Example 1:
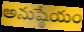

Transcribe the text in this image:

అనుష్ఠేయం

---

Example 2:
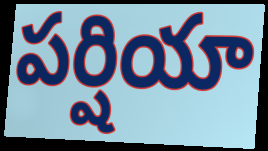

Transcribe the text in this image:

పర్షియా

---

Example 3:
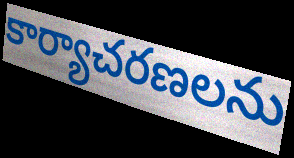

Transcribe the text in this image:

కార్యాచరణలను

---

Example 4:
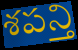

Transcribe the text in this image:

శపన్తి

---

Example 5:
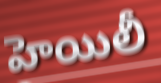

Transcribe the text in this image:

హెయిలీ